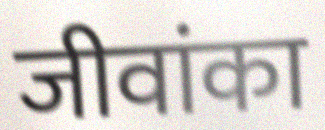
जीवांका